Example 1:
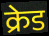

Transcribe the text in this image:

क्रेड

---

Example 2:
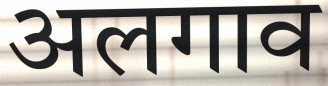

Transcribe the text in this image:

अलगाव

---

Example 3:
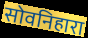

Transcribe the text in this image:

सोवनिहारा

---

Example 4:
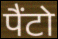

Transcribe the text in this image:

पैंटो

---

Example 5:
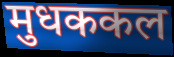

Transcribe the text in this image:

मुधककल